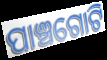
ପାଞ୍ଚଗୋଟି